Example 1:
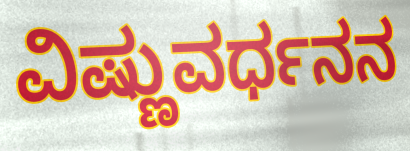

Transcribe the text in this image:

ವಿಷ್ಣುವರ್ಧನನ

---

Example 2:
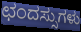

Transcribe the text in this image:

ಛಂದಸ್ಸುಗಳು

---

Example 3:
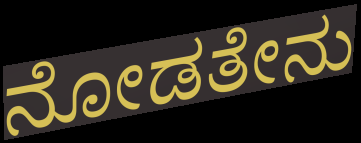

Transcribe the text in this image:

ನೋಡತೇನು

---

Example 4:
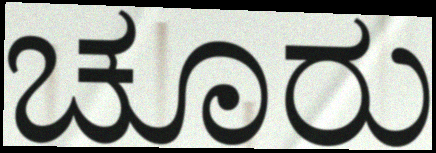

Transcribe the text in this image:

ಚೂರು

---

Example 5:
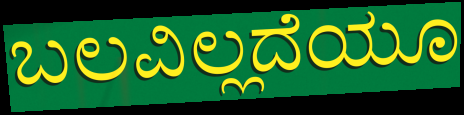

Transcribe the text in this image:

ಬಲವಿಲ್ಲದೆಯೂ